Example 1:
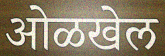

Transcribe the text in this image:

ओळखेल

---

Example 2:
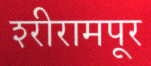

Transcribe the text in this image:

श्रीरामपूर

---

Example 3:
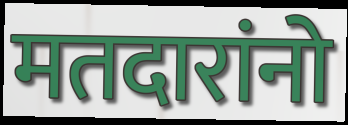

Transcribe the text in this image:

मतदारांनो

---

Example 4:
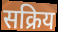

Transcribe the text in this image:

सक्रिय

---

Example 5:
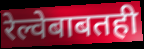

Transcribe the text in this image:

रेल्वेबाबतही